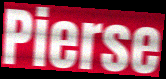
Pierse